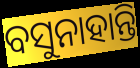
ବସୁନାହାନ୍ତି